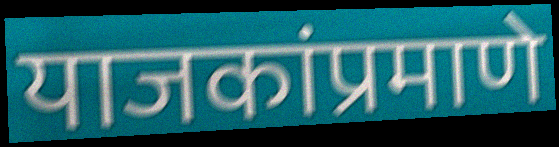
याजकांप्रमाणे